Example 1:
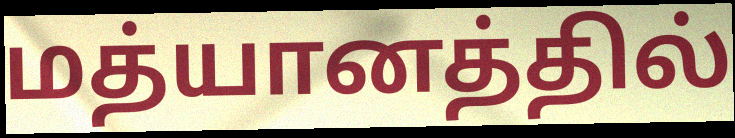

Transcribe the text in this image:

மத்யானத்தில்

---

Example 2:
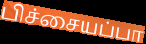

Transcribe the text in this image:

பிச்சையப்பா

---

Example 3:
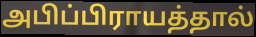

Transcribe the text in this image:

அபிப்பிராயத்தால்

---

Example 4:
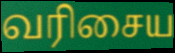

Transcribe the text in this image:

வரிசைய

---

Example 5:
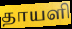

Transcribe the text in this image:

தாயளி